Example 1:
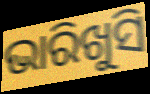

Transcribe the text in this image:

ଭାରିଖୁସି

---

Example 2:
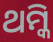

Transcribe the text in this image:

ଥମ୍କି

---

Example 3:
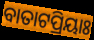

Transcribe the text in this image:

ବାତାଟପ୍ରିୟାଃ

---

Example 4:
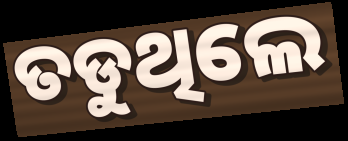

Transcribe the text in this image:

ତଡୁଥିଲେ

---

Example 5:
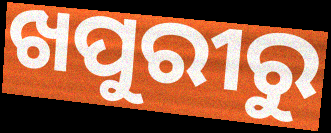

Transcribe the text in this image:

ଖପୁରୀରୁ